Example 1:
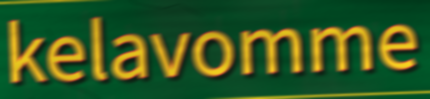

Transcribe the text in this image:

kelavomme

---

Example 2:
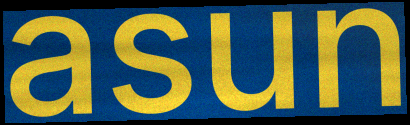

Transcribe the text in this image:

asun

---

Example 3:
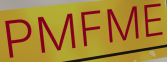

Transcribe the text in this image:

PMFME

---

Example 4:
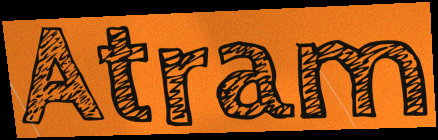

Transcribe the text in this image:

Atram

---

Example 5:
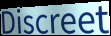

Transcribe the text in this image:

Discreet